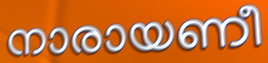
നാരായണീ